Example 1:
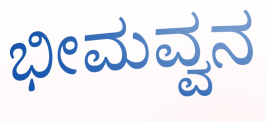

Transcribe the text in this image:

ಭೀಮವ್ವನ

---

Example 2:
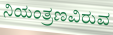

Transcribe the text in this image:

ನಿಯಂತ್ರಣವಿರುವ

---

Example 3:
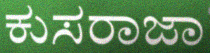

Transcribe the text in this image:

ಕುಸರಾಜಾ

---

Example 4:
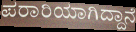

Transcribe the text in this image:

ಪರಾರಿಯಾಗಿದ್ದಾನೆ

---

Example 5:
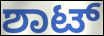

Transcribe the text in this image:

ಶಾಟ್